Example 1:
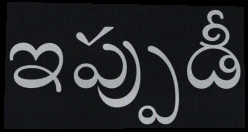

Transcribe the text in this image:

ఇప్పుడీ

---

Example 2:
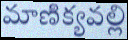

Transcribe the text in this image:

మాణిక్యవల్లి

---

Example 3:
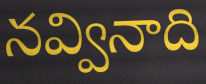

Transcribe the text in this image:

నవ్వినాది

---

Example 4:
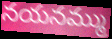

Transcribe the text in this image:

నయనమ్ము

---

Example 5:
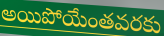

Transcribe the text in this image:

అయిపోయేంతవరకు